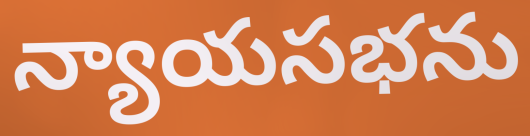
న్యాయసభను